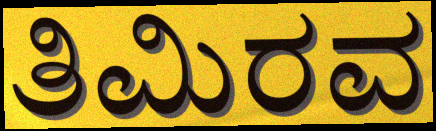
ತಿಮಿರವ